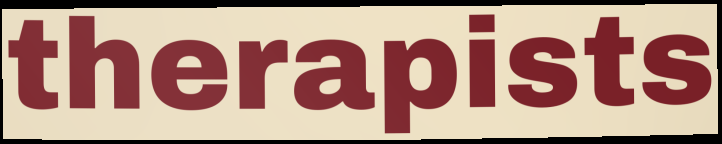
therapists